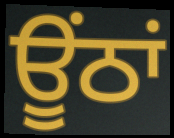
ਊਂਠਾਂ